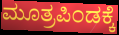
ಮೂತ್ರಪಿಂಡಕ್ಕೆ